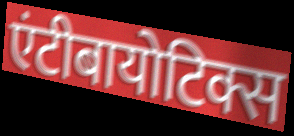
एंटीबायोटिक्स